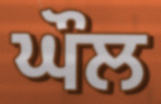
ਘੌਲ